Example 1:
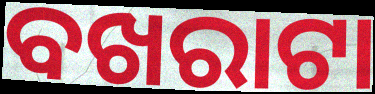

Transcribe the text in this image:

ବଖରାଟା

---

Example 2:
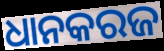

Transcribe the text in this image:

ଧାନକରଜ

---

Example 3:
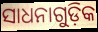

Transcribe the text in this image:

ସାଧନାଗୁଡ଼ିକ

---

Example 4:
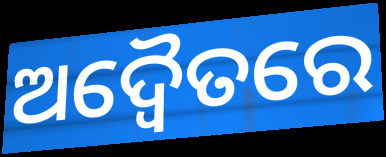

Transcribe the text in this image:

ଅଦ୍ୱୈତରେ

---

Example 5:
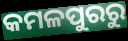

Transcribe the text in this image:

କମଳପୁରରୁ